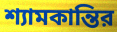
শ্যামকান্তির